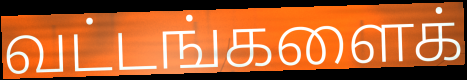
வட்டங்களைக்